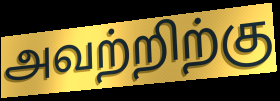
அவற்றிற்கு